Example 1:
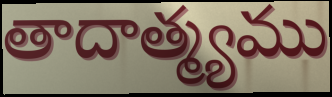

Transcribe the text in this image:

తాదాత్మ్యము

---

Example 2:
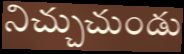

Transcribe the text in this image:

నిచ్చుచుండు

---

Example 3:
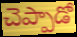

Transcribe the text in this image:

చెప్పాడో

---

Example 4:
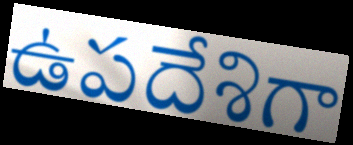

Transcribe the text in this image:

ఉపదేశిగా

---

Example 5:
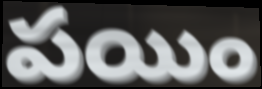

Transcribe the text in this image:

పయిం